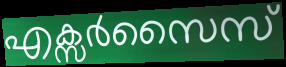
എക്സർസൈസ്